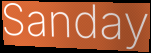
Sanday